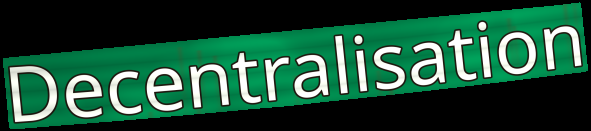
Decentralisation